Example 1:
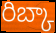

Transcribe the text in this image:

రిబ్కా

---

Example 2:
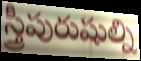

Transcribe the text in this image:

స్త్రీపురుషుల్ని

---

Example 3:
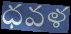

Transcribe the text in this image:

ధవళ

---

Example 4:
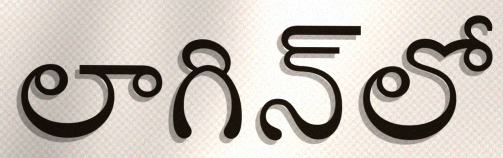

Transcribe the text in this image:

లాగిన్‌లో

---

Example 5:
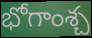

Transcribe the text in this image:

భోగాంశ్చ